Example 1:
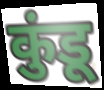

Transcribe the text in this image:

कुंडू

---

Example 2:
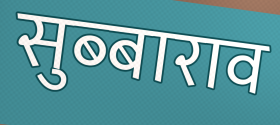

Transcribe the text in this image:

सुब्‍बाराव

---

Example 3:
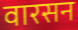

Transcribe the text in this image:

वारसन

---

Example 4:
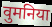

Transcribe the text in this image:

वुमनिया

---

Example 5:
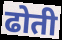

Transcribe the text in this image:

ढोती